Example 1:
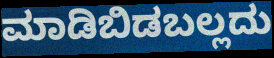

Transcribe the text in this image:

ಮಾಡಿಬಿಡಬಲ್ಲದು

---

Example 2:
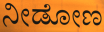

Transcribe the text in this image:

ನೀಡೋಣ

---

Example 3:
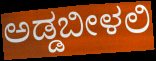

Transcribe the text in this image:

ಅಡ್ಡಬೀಳಲಿ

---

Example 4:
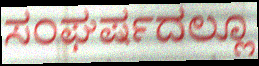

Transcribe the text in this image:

ಸಂಘರ್ಷದಲ್ಲೂ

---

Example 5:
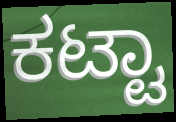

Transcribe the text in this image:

ಕಟ್ಟಾ